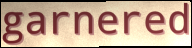
garnered